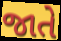
જાતે